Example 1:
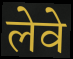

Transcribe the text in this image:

लेवे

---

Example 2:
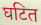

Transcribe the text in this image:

घटित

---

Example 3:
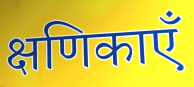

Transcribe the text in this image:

क्षणिकाएँ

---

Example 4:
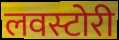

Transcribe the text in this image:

लवस्‍टोरी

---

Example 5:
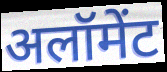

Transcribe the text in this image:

अलॉमेंट